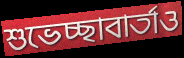
শুভেচ্ছাবার্তাও